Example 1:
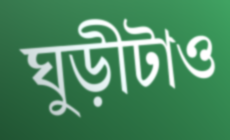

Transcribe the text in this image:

ঘুড়ীটাও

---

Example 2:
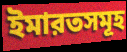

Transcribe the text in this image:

ইমারতসমূহ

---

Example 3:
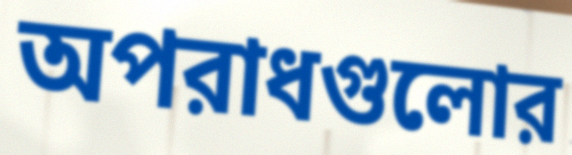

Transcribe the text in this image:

অপরাধগুলোর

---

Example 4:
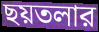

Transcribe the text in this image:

ছয়তলার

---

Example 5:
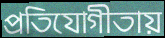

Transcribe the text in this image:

প্রতিযোগীতায়